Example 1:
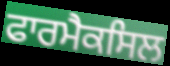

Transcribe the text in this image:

ਫਾਰਮੈਕਸਿਲ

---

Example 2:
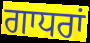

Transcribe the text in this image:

ਗਾਧਰਾਂ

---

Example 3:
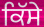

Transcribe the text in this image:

ਕਿੱਸੇ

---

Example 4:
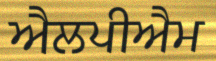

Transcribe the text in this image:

ਐਲਪੀਐਮ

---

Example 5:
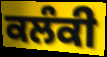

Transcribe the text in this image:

ਕਲੰਕੀ